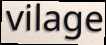
vilage